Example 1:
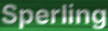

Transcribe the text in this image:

Sperling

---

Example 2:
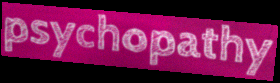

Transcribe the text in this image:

psychopathy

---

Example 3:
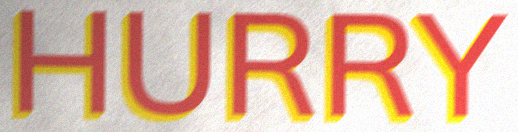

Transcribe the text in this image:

HURRY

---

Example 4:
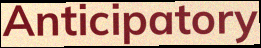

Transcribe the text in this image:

Anticipatory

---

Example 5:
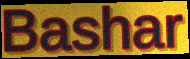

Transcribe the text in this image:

Bashar